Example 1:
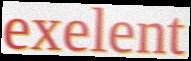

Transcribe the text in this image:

exelent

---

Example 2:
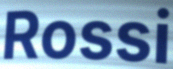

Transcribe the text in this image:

Rossi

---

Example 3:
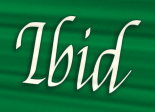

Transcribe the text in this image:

Ibid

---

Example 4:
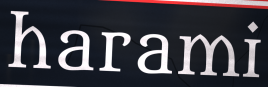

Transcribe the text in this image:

harami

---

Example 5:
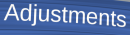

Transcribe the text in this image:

Adjustments